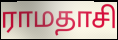
ராமதாசி